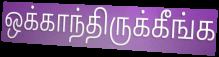
ஒக்காந்திருக்கீங்க